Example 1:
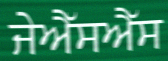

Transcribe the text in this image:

ਜੇਐੱਸਐੱਸ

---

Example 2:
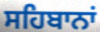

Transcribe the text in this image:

ਸਹਿਬਾਨਾਂ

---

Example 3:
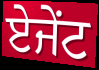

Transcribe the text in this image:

ਏਜੇਂਟ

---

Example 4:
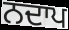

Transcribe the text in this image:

ਨਦਾਪ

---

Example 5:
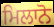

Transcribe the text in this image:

ਮਿਲਾਨੋ